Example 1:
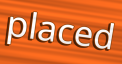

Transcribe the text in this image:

placed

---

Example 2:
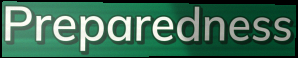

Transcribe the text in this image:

Preparedness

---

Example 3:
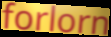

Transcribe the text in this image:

forlorn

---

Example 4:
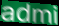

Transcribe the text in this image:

admi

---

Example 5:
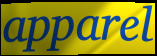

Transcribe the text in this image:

apparel